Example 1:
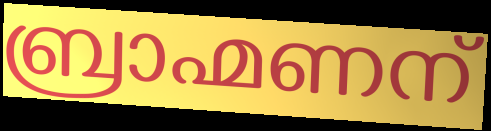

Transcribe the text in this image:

ബ്രാഹ്മണന്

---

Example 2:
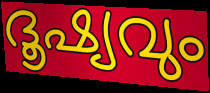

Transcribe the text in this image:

ദൂഷ്യവും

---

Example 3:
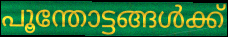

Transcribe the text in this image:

പൂന്തോട്ടങ്ങൾക്ക്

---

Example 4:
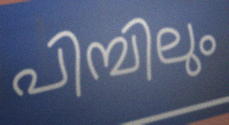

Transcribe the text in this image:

പിമ്പിലും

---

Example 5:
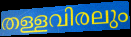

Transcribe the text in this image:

തള്ളവിരലും